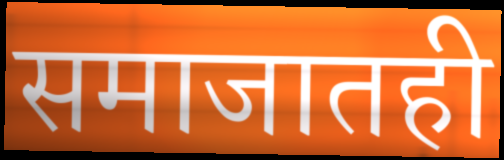
समाजातही